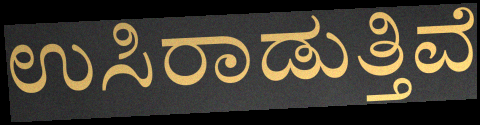
ಉಸಿರಾಡುತ್ತಿವೆ